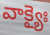
వాక్యైః